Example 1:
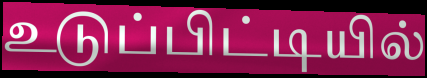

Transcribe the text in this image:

உடுப்பிட்டியில்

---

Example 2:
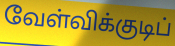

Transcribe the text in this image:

வேள்விக்குடிப்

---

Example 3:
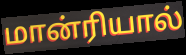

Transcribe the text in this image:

மான்ரியால்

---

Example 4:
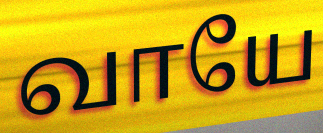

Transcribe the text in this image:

வாயே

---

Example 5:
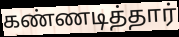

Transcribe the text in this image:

கண்ணடித்தார்